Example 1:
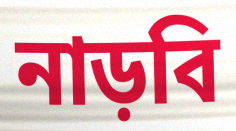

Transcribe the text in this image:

নাড়বি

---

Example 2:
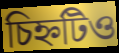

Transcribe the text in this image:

চিহ্নটিও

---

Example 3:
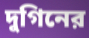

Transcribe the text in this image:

দুগিনের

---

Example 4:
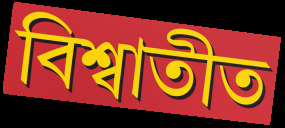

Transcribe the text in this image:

বিশ্বাতীত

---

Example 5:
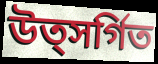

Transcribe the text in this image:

উত্সর্গিত